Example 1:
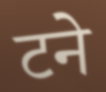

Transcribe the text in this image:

टने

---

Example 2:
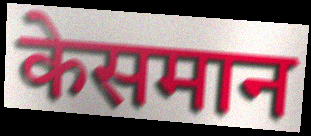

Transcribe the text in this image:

केसमान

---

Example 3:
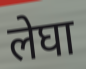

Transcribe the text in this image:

लेघा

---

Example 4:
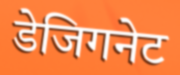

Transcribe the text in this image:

डेजिगनेट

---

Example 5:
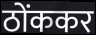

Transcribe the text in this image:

ठोंककर